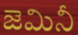
జెమినీ